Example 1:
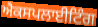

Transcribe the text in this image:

ਐਕਸਪਲਾਈਟਿੰਗ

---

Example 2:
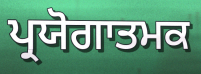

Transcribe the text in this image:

ਪ੍ਰਯੋਗਾਤਮਕ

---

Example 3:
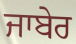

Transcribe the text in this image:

ਜਾਬੇਰ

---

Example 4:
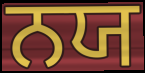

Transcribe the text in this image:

ਨਯ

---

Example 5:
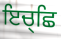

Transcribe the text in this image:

ਇਚ੍ਛਿ